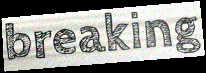
breaking